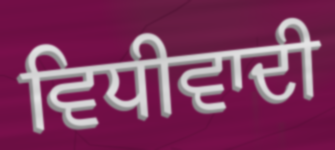
ਵਿਧੀਵਾਦੀ